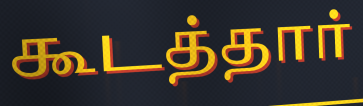
கூடத்தார்